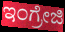
ಇಂಗ್ರೇಜಿ